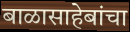
बाळासाहेबांचा